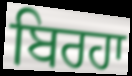
ਬਿਰਹਾ